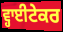
ਵ੍ਹਾਈਟੇਕਰ